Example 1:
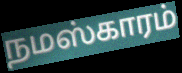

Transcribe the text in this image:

நமஸ்காரம்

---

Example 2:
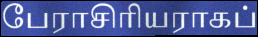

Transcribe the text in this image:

பேராசிரியராகப்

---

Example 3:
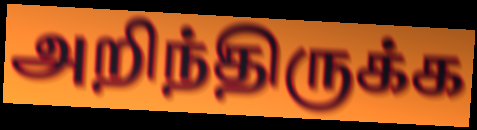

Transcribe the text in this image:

அறிந்திருக்க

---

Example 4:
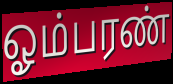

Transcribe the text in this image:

ஓம்பரண்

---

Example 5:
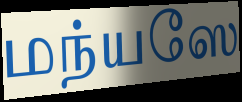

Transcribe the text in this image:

மந்யஸே